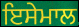
ਇਸੇਮਾਲ